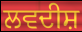
ਲਵਦੀਸ਼